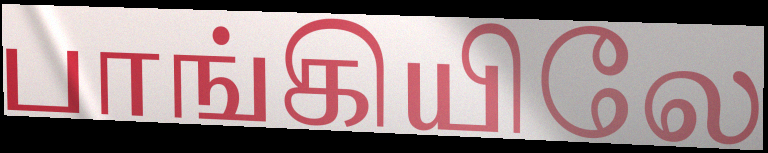
பாங்கியிலே